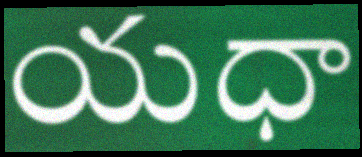
యధా